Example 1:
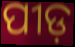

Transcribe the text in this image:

ପୀଡ଼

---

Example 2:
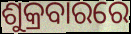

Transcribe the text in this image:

ଶୁକ୍ରବାରରେ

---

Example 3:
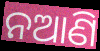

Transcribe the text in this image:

ନଆଣି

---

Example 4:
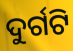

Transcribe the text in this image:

ଦୁର୍ଗଟି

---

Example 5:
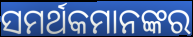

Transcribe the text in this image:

ସମର୍ଥକମାନଙ୍କର